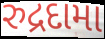
રુદ્રદામા